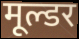
मूल्डर